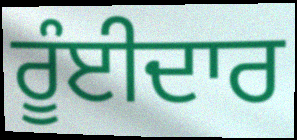
ਰੂੰਈਦਾਰ